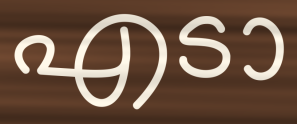
എടാ